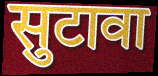
सुटावा